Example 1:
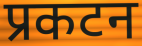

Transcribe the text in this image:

प्रकटन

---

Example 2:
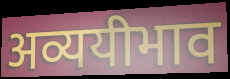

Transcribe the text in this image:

अव्ययीभाव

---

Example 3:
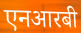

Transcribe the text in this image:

एनआरबी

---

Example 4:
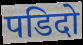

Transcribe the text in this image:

पडिदो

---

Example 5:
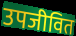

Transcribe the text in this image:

उपजीवित